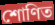
শোণিত